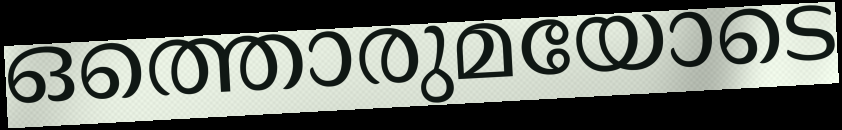
ഒത്തൊരുമയോടെ